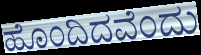
ಹೊಂದಿದವೆಂದು